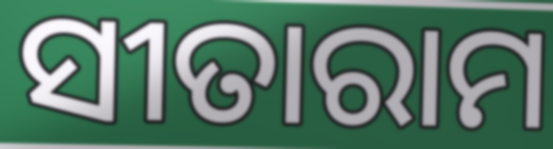
ସୀତାରାମ